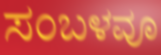
ಸಂಬಳವೂ